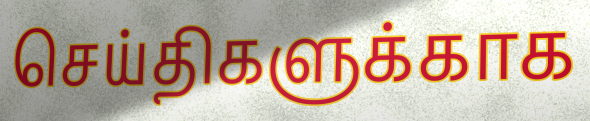
செய்திகளுக்காக